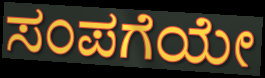
ಸಂಪಗೆಯೇ